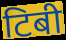
टिबी